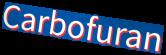
Carbofuran